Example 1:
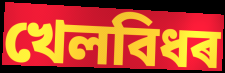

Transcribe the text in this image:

খেলবিধৰ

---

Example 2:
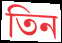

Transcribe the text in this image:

তিন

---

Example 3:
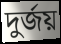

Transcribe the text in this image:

দুৰ্জয়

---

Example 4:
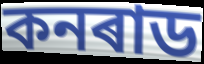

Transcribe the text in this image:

কনৰাড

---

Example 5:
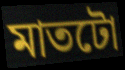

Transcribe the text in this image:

মাতটো